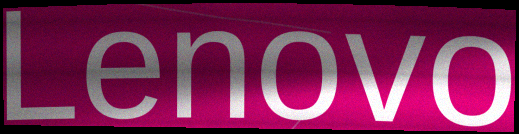
Lenovo